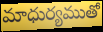
మాధుర్యముతో